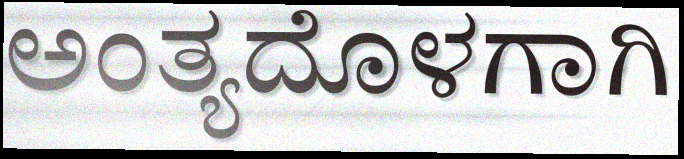
ಅಂತ್ಯದೊಳಗಾಗಿ